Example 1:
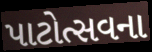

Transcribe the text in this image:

પાટોત્સવના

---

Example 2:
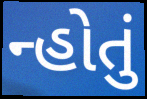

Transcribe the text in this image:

ન્હોતું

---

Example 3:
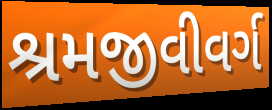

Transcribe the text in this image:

શ્રમજીવીવર્ગ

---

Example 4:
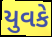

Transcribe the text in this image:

યુવકે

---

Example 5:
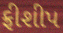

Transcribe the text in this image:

ફ્રીશીપ